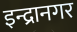
इन्द्रानगर